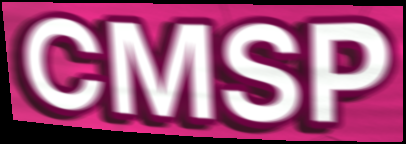
CMSP